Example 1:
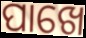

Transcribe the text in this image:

ପାଖେ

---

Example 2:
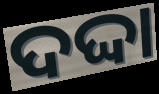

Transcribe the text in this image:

ଦଦ୍ଦା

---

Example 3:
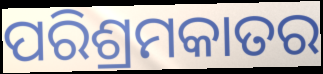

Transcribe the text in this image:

ପରିଶ୍ରମକାତର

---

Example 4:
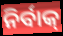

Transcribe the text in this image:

ନିର୍ବାକ୍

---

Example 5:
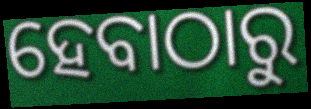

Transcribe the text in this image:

ହେବାଠାରୁ